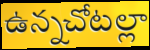
ఉన్నచోటల్లా